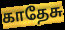
காதேசு